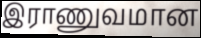
இராணுவமான